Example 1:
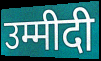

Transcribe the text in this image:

उम्मीदी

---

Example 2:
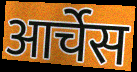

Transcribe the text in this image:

आर्चेस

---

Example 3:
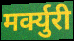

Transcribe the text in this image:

मर्क्युरी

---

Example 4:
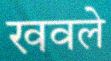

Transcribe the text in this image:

खवले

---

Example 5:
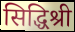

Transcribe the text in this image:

सिद्धिश्री